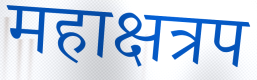
महाक्षत्रप